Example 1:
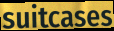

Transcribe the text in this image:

suitcases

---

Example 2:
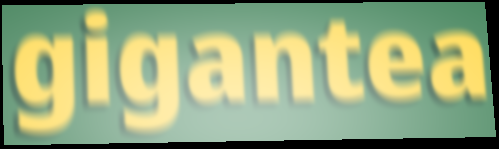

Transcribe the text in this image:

gigantea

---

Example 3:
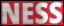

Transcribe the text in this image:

NESS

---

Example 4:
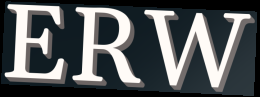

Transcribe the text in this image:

ERW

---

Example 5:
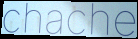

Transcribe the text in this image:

chache